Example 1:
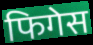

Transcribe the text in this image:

फिगेस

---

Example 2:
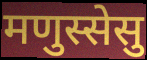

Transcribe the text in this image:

मणुस्सेसु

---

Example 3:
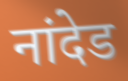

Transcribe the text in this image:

नांदेड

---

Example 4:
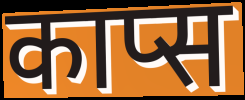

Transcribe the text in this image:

काप्स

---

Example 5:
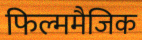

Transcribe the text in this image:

फिल्ममैजिक